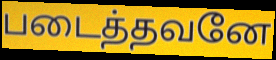
படைத்தவனே